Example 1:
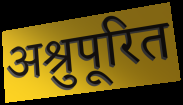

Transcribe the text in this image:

अश्रुपूरित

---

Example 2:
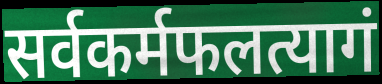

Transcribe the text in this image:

सर्वकर्मफलत्यागं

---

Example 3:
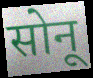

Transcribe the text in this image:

सोनू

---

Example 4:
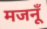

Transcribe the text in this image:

मजनूँ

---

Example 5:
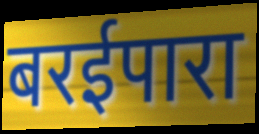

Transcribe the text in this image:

बरईपारा